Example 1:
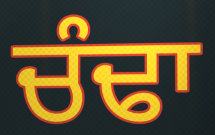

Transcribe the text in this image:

ਚੰਢਾ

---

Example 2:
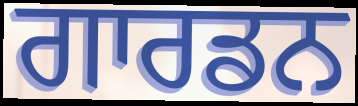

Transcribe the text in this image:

ਗਾਰਡਨ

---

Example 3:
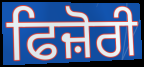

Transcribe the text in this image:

ਫਿਜ਼ੋਰੀ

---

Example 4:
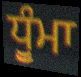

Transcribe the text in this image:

ਧੂੰਮਾ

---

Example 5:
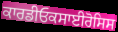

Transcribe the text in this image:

ਕਾਰਡੀਓਕਸਾਈਰੋਸਿਸ